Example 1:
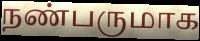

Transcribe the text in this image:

நண்பருமாக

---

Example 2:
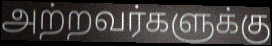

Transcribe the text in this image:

அற்றவர்களுக்கு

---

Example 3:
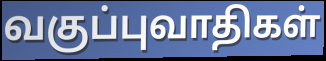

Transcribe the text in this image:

வகுப்புவாதிகள்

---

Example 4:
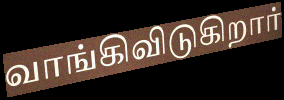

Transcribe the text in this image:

வாங்கிவிடுகிறார்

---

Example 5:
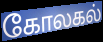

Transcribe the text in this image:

கோலகல்